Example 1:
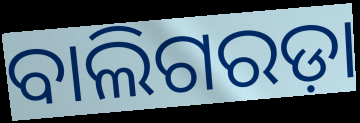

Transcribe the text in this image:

ବାଲିଗରଡ଼ା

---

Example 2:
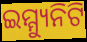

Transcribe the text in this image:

ଇମ୍ମ୍ୟୁନିଟି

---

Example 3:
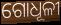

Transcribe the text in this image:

ଗୋଧୂଳୀ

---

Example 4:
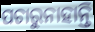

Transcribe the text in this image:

ପଚାରୁନାହାନ୍ତି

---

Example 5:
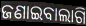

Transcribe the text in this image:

ଜଣାଇବାଲାଗି